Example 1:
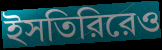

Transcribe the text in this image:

ইসতিরিরেও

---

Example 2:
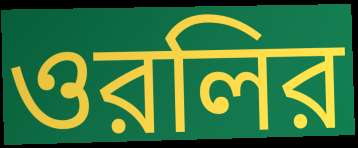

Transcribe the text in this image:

ওরলির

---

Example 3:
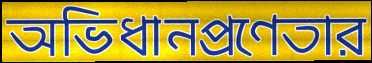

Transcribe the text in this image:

অভিধানপ্রণেতার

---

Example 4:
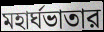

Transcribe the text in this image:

মহার্ঘভাতার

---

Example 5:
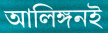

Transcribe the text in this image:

আলিঙ্গনই